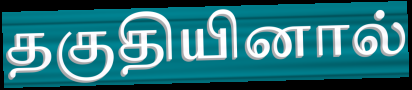
தகுதியினால்